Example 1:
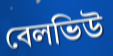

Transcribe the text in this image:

বেলভিউ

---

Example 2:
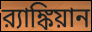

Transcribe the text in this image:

র‍্যাঙ্কিয়ান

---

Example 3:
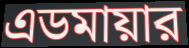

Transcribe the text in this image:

এডমায়ার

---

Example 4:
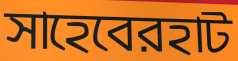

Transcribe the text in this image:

সাহেবেরহাট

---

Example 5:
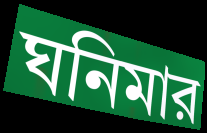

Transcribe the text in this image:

ঘনিমার